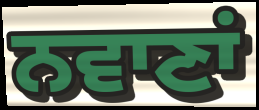
ਨਵਾਣਾਂ